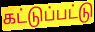
கட்டுப்பட்டு